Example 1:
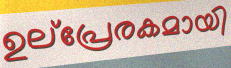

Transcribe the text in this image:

ഉല്പ്രേരകമായി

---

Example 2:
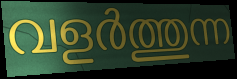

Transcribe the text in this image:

വളർത്തുന്ന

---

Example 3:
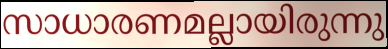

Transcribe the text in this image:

സാധാരണമല്ലായിരുന്നു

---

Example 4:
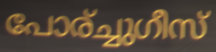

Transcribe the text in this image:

പോര്ച്ചുഗീസ്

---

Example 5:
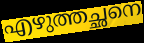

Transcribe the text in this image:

എഴുത്തച്ഛനെ